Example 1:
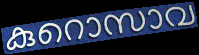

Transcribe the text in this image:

കുറൊസാവ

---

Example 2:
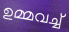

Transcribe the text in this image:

ഉമ്മവച്ച്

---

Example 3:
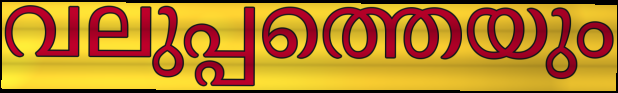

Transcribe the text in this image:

വലുപ്പത്തെയും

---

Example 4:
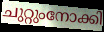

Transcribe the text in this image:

ചുറ്റുംനോക്കി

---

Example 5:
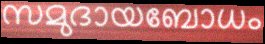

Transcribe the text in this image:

സമുദായബോധം